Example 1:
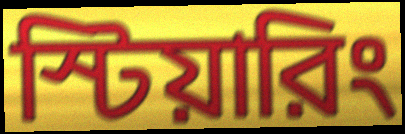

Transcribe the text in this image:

স্টিয়ারিং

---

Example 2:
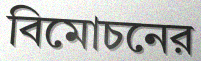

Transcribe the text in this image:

বিমোচনের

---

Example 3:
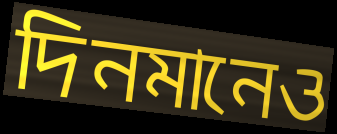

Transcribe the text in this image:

দিনমানেও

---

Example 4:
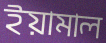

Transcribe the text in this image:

ইয়ামাল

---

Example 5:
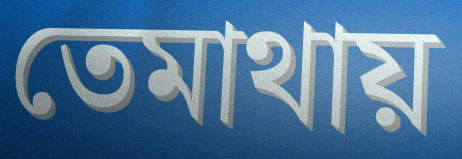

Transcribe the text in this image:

তেমাথায়